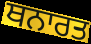
ਥਨਾਰਤ